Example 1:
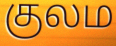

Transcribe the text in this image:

குலம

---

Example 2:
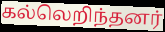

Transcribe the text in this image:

கல்லெறிந்தனர்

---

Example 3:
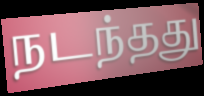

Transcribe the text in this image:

நடந்தது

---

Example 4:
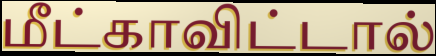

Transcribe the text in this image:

மீட்காவிட்டால்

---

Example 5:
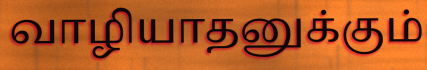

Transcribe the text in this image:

வாழியாதனுக்கும்